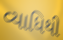
વ્યાધિથી